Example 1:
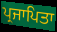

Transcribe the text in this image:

ਪ੍ਰਜਾਪਿਤਾ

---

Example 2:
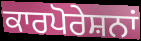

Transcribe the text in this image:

ਕਾਰਪੋਰੇਸ਼ਨਾਂ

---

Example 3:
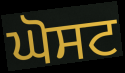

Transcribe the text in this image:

ਘੋਸਟ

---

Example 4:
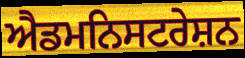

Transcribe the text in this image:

ਐਡਮਨਿਸਟਰੇਸ਼ਨ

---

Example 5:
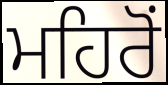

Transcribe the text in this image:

ਮਹਿਰੋਂ